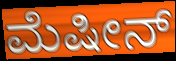
ಮೆಷೀನ್